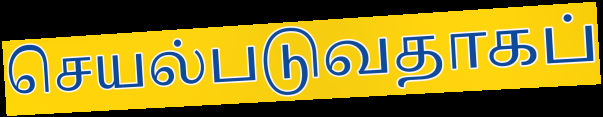
செயல்படுவதாகப்